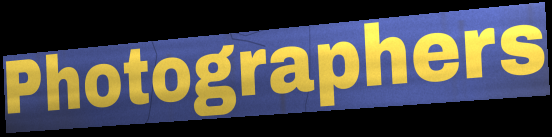
Photographers